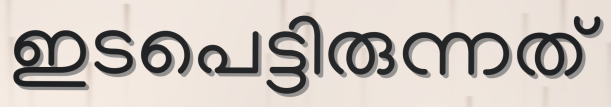
ഇടപെട്ടിരുന്നത്